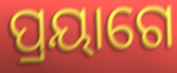
ପ୍ରୟାଗେ